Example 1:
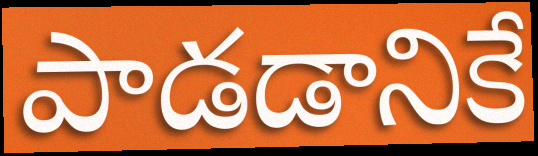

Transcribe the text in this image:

పాడడానికే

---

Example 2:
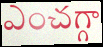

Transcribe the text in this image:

ఎంచగ్గా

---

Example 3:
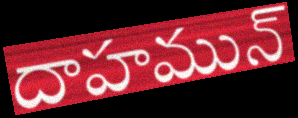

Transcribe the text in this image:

దాహమున్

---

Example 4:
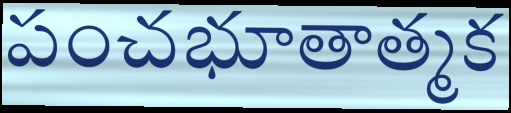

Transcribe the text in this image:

పంచభూతాత్మక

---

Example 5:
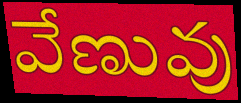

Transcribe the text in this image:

వేణువు